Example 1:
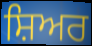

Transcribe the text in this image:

ਸ਼ਿਅਰ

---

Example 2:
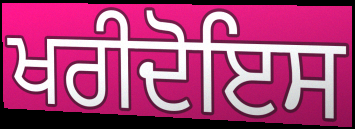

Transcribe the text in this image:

ਖਰੀਦੋਇਸ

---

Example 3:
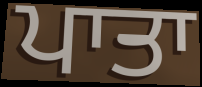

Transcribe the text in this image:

ਪਾਤਾ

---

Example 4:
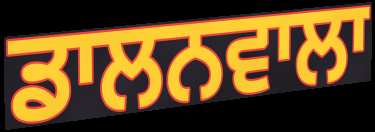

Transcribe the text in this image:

ਡਾਲਨਵਾਲਾ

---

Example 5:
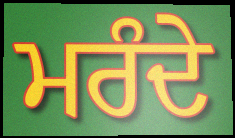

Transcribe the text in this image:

ਮਰੰਦੇ